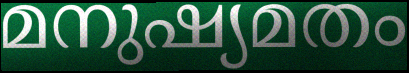
മനുഷ്യമതം